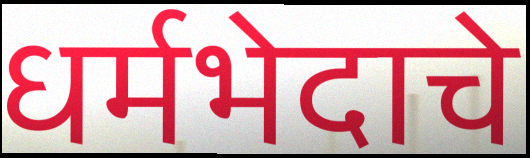
धर्मभेदाचे